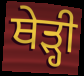
ਥੇੜ੍ਹੀ